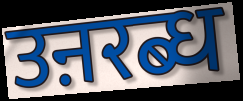
उऩरब्ध